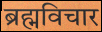
ब्रह्मविचार